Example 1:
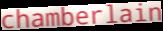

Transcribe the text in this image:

chamberlain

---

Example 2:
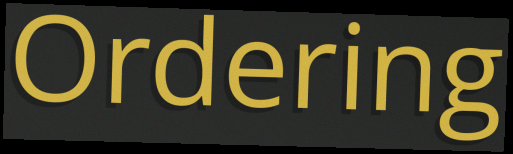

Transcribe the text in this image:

Ordering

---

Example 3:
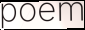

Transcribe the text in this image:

poem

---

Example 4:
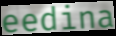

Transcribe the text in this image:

eedina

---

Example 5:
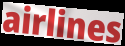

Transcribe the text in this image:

airlines